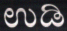
ಉಡಿ